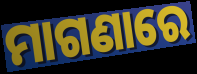
ମାଗଣାରେ